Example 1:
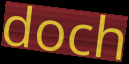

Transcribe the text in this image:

doch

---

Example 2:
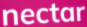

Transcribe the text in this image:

nectar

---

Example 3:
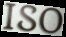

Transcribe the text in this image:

ISO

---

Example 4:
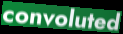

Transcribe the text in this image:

convoluted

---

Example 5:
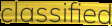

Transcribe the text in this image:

classified